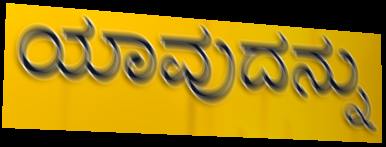
ಯಾವುದನ್ನು